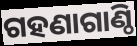
ଗହଣାଗାଣ୍ଠି